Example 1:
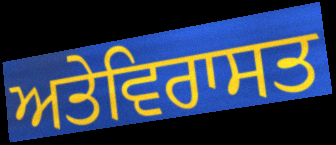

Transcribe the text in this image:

ਅਤੇਵਿਰਾਸਤ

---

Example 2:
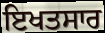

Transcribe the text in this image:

ਇਖਤਸਾਰ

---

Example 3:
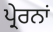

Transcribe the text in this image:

ਪ੍ਰੇਰਨਾਂ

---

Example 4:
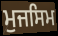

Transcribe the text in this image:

ਮੁਜਸਿਮ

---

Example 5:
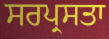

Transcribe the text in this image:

ਸਰਪ੍ਰਸਤਾ